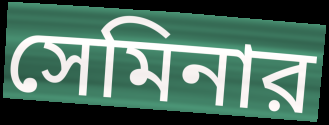
সেমিনার